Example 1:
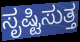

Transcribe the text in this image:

ಸೃಷ್ಟಿಸುತ್ತ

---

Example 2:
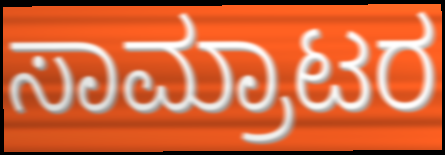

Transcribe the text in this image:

ಸಾಮ್ರಾಟರ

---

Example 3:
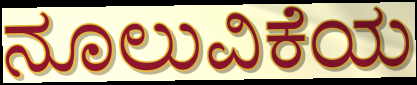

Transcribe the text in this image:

ನೂಲುವಿಕೆಯ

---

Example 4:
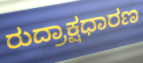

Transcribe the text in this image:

ರುದ್ರಾಕ್ಷಧಾರಣ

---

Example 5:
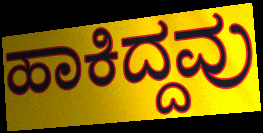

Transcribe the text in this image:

ಹಾಕಿದ್ದವು